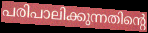
പരിപാലിക്കുന്നതിന്റെ